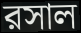
রসাল